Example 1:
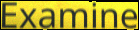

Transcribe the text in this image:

Examine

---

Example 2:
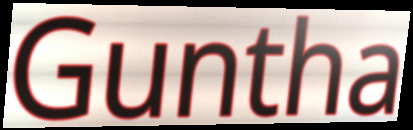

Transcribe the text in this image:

Guntha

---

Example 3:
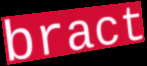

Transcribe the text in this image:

bract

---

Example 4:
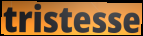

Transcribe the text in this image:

tristesse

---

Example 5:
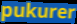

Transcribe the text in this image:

pukurer